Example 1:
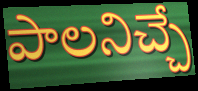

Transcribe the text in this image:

పాలనిచ్చే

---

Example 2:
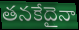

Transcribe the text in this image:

తనకేదైనా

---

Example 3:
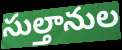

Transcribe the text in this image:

సుల్తానుల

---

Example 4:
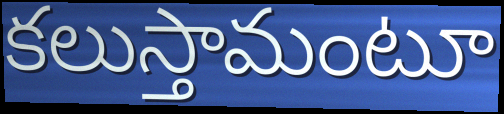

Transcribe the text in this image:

కలుస్తామంటూ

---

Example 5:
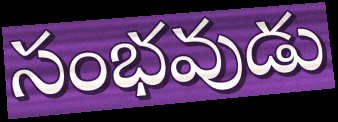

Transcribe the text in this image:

సంభవుడు